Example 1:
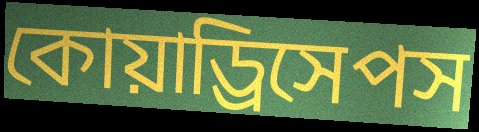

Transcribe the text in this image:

কোয়াড্রিসেপস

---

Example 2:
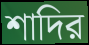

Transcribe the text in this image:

শাদির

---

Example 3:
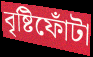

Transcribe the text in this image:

বৃষ্টিফোঁটা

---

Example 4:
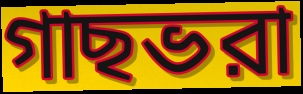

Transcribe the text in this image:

গাছভরা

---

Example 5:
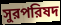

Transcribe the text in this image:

সুরপরিষদ